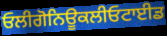
ਓਲੀਗੋਨਿਊਕਲੀਓਟਾਈਡ